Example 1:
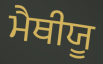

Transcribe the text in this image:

ਮੈਥੀਯੂ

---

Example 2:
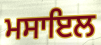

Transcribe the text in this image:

ਮਸਾਇਲ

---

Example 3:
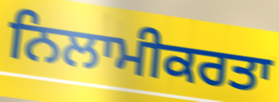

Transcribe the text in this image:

ਨਿਲਾਮੀਕਰਤਾ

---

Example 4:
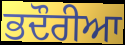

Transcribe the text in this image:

ਭਦੌਰੀਆ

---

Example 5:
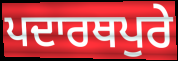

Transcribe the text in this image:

ਪਦਾਰਥਪੁਰੇ